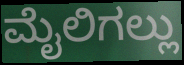
ಮೈಲಿಗಲ್ಲು